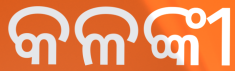
କଳଙ୍କୀ